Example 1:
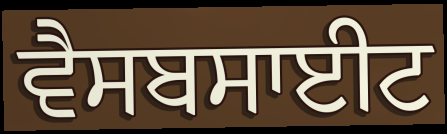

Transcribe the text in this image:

ਵੈਸਬਸਾਈਟ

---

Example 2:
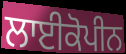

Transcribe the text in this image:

ਲਾਈਕੋਪੀਨ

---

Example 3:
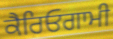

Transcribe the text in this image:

ਕੈਰਿਓਗਾਮੀ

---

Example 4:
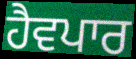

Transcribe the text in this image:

ਹੈਵਪਾਰ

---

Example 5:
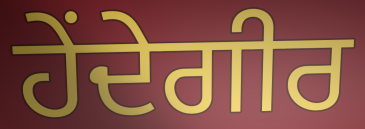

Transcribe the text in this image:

ਹੇਂਦੇਗੀਰ